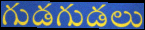
గుడగుడలు